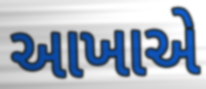
આખાએ